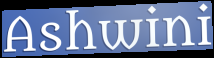
Ashwini